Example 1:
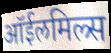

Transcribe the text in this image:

ऑईलमिल्स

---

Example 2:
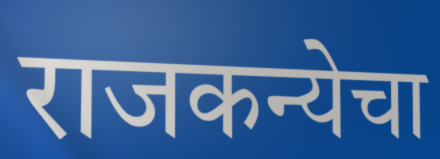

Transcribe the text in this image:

राजकन्येचा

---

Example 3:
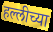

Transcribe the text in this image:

हल्लीच्या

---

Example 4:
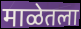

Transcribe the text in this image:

माळेतला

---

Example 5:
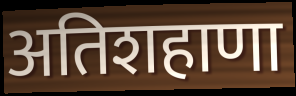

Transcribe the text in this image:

अतिशहाणा